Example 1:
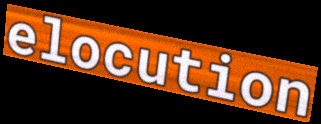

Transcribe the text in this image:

elocution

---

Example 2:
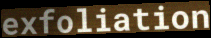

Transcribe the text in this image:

exfoliation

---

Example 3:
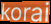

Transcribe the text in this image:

korai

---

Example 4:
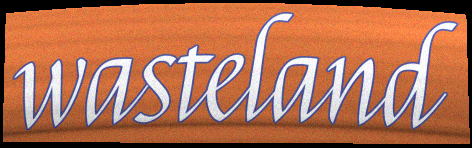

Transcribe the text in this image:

wasteland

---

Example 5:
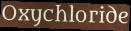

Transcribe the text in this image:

Oxychloride